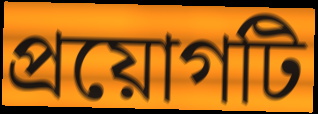
প্রয়োগটি